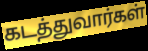
கடத்துவார்கள்